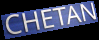
CHETAN